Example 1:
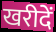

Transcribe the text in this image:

खरीदें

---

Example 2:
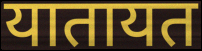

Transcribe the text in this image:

यातायत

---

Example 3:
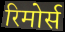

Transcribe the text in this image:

रिमोर्स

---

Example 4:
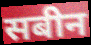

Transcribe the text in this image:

सबीन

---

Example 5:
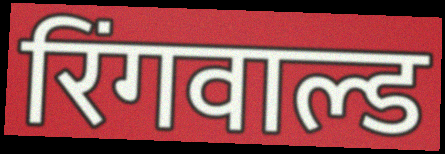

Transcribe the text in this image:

रिंगवाल्ड